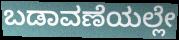
ಬಡಾವಣೆಯಲ್ಲೇ